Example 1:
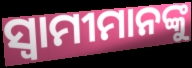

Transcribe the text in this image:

ସ୍ଵାମୀମାନଙ୍କୁ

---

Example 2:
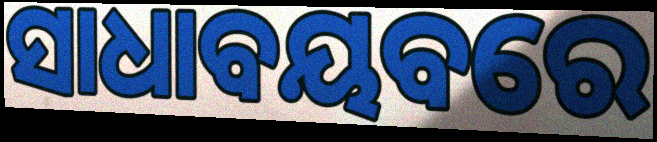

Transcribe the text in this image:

ସାଧାବୟବରେ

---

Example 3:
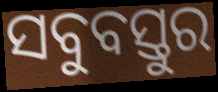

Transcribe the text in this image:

ସବୁବସ୍ତୁର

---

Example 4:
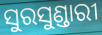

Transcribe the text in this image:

ସୁରସୁଣ୍ଡାରୀ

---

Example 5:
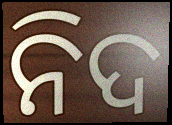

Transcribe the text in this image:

ନିଦ